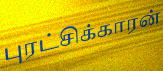
புரட்சிக்காரன்